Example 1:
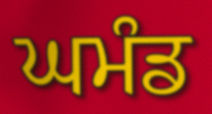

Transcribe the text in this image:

ਘਮੰਡ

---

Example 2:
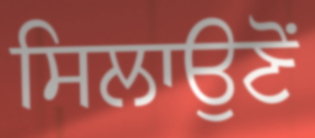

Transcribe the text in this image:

ਸਿਲਾਉਣੋਂ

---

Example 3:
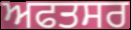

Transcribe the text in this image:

ਅਫਤਸਰ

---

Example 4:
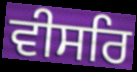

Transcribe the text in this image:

ਵੀਸਰਿ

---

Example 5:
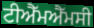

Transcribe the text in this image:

ਟੀਐੱਮਐੱਮਸੀ